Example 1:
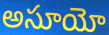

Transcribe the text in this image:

అసూయో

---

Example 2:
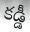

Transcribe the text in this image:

కడ్డీ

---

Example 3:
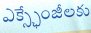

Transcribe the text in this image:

ఎక్స్ఛేంజీలకు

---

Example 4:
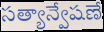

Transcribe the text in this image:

సత్యాన్వేషణే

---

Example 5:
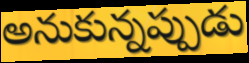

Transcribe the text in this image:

అనుకున్నప్పుడు